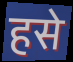
हसे